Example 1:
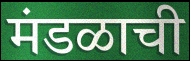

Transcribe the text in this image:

मंडळाची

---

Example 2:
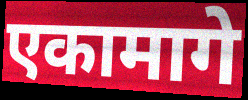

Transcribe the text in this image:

एकामागे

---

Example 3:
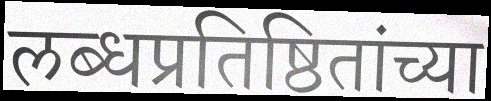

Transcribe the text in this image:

लब्धप्रतिष्ठितांच्या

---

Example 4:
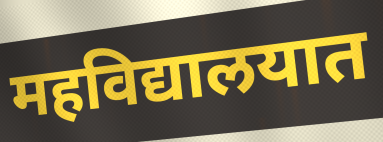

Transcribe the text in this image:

महविद्यालयात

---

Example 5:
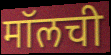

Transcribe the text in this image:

मॉलची